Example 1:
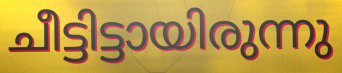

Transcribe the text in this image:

ചീട്ടിട്ടായിരുന്നു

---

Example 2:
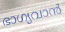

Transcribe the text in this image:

ഭാഗ്യവാൻ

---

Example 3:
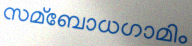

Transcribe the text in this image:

സമ്ബോധഗാമിം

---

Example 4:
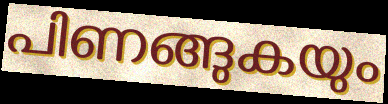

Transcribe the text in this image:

പിണങ്ങുകയും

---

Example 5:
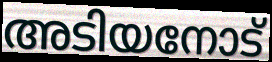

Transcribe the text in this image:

അടിയനോട്